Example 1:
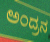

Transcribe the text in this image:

ಅಂದ್ರನ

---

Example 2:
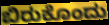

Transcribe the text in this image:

ಬಿರುಕೊಂದು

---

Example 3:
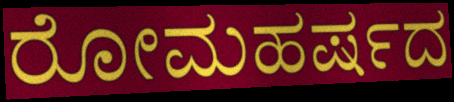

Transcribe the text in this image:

ರೋಮಹರ್ಷದ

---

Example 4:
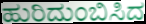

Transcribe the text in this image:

ಹುರಿದುಂಬಿಸಿದ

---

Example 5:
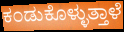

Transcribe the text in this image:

ಕಂಡುಕೊಳ್ಳುತ್ತಾಳೆ